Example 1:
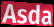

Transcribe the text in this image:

Asda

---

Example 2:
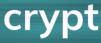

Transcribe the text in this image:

crypt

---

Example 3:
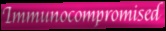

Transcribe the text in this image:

Immunocompromised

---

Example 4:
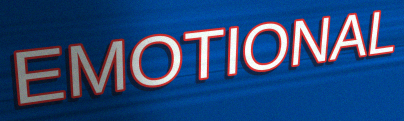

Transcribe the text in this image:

EMOTIONAL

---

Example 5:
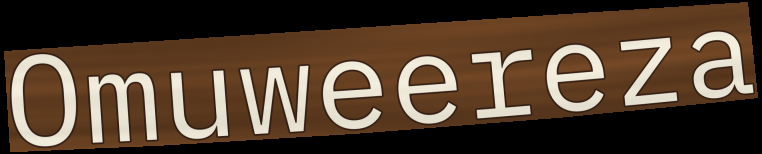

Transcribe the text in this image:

Omuweereza